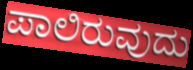
ಪಾಲಿರುವುದು